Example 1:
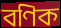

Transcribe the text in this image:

বণিক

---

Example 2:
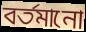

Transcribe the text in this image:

বৰ্তমানো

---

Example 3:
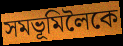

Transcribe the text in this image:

সমভূমিলৈকে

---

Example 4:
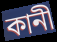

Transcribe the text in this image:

কানী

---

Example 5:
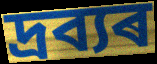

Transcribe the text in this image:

দ্ৰব্যৰ